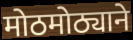
मोठमोठ्याने